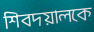
শিবদয়ালকে